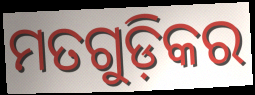
ମତଗୁଡ଼ିକର